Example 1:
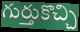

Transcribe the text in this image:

గుర్తుకొచ్చి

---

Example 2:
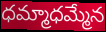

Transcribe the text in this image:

ధమ్మాధమ్మేన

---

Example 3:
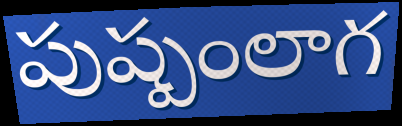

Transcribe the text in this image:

పుష్పంలాగ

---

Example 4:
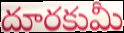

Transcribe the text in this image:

దూరకుమీ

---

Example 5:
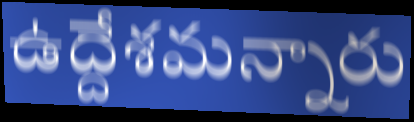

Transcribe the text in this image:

ఉద్దేశమన్నారు